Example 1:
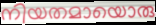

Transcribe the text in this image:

നിയതമായൊരു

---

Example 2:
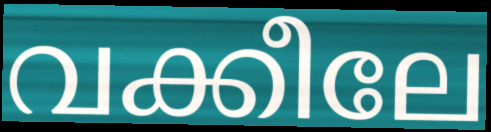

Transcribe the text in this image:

വക്കീലേ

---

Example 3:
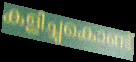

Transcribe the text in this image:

കളിച്ചുകൊണ്ട്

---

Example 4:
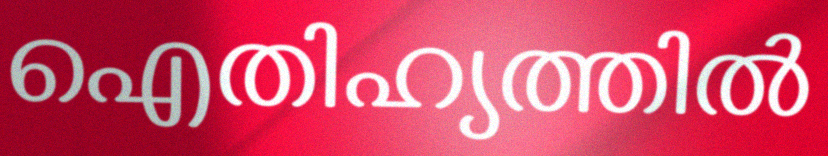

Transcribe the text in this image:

ഐതിഹ്യത്തിൽ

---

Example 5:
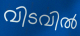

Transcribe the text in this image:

വിടവിൽ